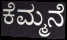
ಕೆಮ್ಮನೆ